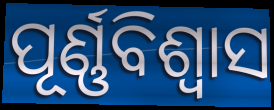
ପୂର୍ଣ୍ଣବିଶ୍ଵାସ